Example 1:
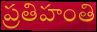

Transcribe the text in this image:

ప్రతిహంతి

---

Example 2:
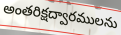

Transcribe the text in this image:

అంతరిక్షద్వారములను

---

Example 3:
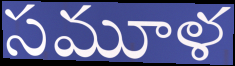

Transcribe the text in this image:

సమూళ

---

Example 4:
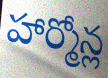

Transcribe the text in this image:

హార్మోన్ల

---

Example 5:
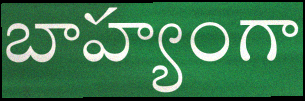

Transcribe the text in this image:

బాహ్యంగా